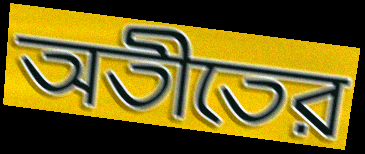
অতীতের